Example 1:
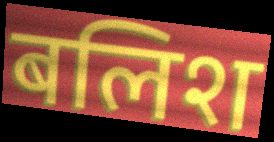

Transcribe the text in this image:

बलिश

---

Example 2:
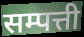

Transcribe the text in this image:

सम्पत्ती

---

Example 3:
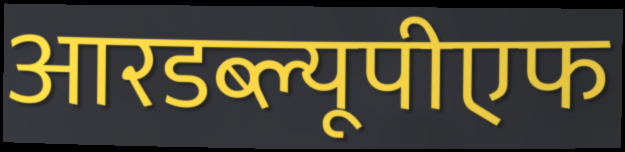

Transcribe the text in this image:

आरडब्ल्यूपीएफ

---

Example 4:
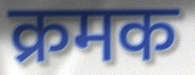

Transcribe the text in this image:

क्रमक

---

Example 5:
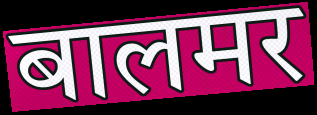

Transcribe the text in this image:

बालमर